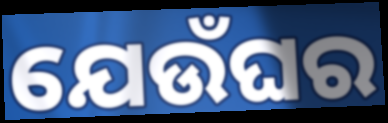
ଯେଉଁଘର